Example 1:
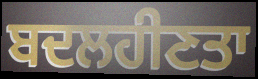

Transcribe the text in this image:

ਬਦਲਹੀਣਤਾ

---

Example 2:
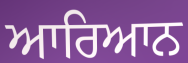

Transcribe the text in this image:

ਆਰਿਆਨ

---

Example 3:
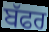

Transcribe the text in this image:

ਬੱਫਰ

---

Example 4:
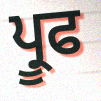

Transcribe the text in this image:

ਪ੍ਰੂਫ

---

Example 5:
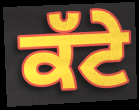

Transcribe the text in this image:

ਕੱਟੇ